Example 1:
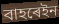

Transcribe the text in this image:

বাহৰেইন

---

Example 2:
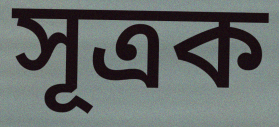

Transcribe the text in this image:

সূত্ৰক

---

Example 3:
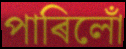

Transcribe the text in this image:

পাৰিলোঁ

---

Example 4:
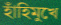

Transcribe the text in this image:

হাঁহিমুখে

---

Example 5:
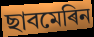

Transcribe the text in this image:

ছাবমেৰিন